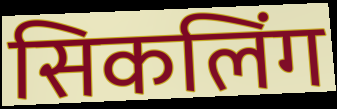
सिकलिंग